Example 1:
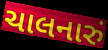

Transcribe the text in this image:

ચાલનારું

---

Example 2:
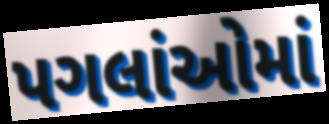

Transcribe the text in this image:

પગલાંઓમાં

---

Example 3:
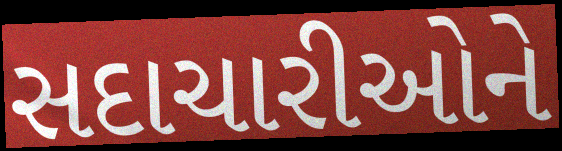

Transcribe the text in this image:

સદાચારીઓને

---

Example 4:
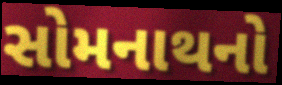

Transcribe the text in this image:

સોમનાથનો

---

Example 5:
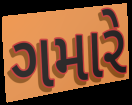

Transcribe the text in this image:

ગમારે